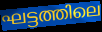
ഘട്ടത്തിലെ